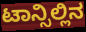
ಟಾನ್ಸಿಲ್ಲಿನ